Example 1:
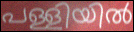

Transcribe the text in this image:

പള്ളിയിൽ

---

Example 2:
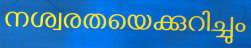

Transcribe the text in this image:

നശ്വരതയെക്കുറിച്ചും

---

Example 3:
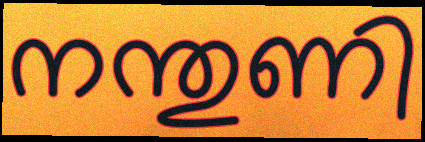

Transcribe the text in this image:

നന്തുണി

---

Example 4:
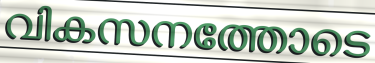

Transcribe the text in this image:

വികസനത്തോടെ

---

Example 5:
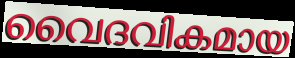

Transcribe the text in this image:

വൈദവികമായ